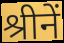
श्रीनें